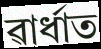
ৱাৰ্ধাত